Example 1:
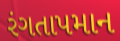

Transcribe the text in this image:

રંગતાપમાન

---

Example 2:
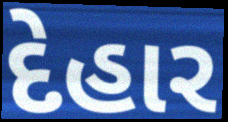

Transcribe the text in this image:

દેહાર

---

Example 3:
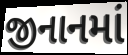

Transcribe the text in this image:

જીનાનમાં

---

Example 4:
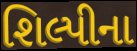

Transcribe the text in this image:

શિલ્પીના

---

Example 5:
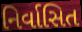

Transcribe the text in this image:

નિર્વાસિત